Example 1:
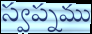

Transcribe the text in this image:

స్వప్నము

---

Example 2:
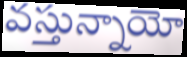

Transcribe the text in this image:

వస్తున్నాయో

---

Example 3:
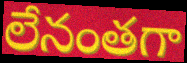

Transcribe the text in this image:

లేనంతగా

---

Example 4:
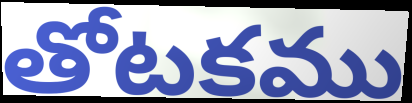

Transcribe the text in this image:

తోటకము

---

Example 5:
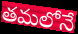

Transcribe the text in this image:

తమలోనే